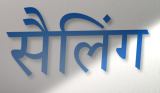
सैलिंग